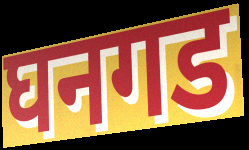
घनगड